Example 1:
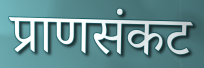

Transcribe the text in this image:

प्राणसंकट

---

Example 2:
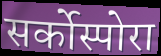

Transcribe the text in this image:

सर्कोस्पोरा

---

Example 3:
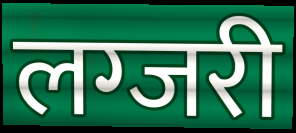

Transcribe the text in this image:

लग्‍जरी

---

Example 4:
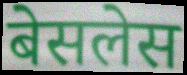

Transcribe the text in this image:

बेसलेस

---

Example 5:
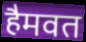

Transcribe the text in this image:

हैमवत